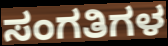
ಸಂಗತಿಗಳ